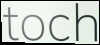
toch